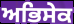
ਅਭਿਸੇਕ